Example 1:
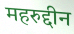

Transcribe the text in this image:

महरुद्दीन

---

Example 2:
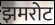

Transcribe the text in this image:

झमरोट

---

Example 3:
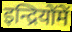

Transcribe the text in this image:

इन्द्रियोंमें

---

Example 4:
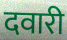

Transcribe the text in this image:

दवारी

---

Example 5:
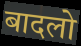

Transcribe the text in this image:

बादलो